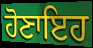
ਹੋਣਾਇਹ